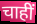
चाहीं